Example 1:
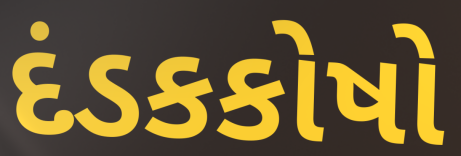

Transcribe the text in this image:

દંડકકોષો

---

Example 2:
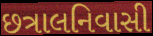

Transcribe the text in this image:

છત્રાલનિવાસી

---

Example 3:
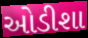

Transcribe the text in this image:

ઓડીશા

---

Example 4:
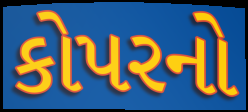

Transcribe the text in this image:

કોપરનો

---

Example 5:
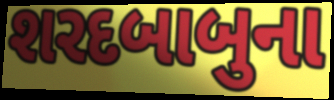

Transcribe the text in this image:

શરદબાબુના